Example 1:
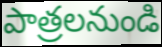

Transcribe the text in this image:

పాత్రలనుండి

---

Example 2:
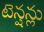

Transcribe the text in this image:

టెన్షన్లు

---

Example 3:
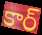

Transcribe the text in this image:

కార్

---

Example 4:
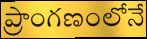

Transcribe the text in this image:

ప్రాంగణంలోనే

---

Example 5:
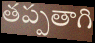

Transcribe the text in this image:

తప్పతాగి